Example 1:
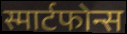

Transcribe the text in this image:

स्मार्टफोन्स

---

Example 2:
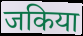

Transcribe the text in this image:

जकिया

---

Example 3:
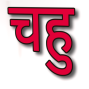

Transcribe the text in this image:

चहु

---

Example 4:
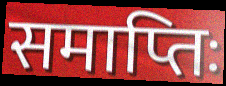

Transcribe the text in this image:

समाप्तिः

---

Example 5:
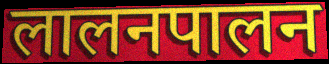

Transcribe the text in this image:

लालनपालन